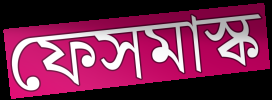
ফেসমাস্ক